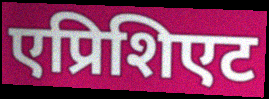
एप्रिशिएट